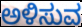
ಅಳಿಸುವ